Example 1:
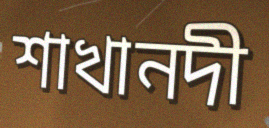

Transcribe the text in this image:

শাখানদী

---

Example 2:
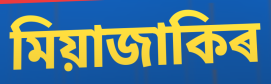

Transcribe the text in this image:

মিয়াজাকিৰ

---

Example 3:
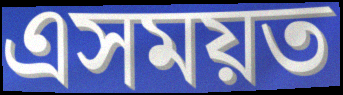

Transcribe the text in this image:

এসময়ত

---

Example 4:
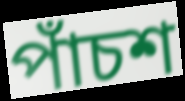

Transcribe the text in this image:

পাঁচশ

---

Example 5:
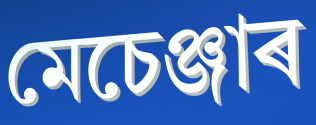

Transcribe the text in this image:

মেচেঞ্জাৰ